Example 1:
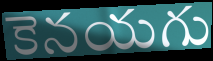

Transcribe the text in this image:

కెనయగు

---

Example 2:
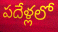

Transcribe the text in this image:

పదేళ్లలో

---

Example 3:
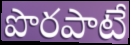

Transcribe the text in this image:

పొరపాటే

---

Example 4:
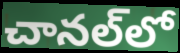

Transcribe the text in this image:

చానల్‌లో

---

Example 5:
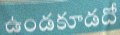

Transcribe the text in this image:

ఉండకూడదో